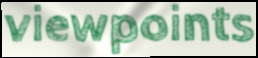
viewpoints